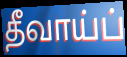
தீவாய்ப்